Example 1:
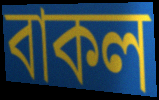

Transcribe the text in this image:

বাকল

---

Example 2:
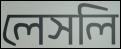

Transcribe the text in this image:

লেসলি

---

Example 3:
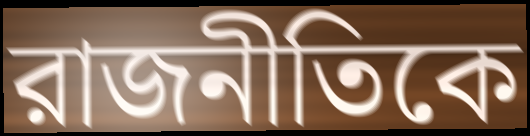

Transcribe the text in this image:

রাজনীতিকে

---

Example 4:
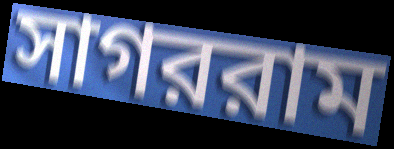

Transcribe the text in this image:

সাগররাম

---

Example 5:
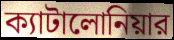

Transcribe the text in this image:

ক্যাটালোনিয়ার